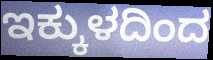
ಇಕ್ಕುಳದಿಂದ